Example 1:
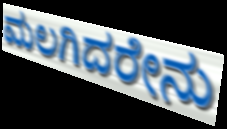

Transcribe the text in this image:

ಮಲಗಿದರೇನು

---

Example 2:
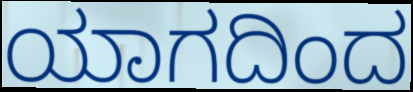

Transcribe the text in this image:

ಯಾಗದಿಂದ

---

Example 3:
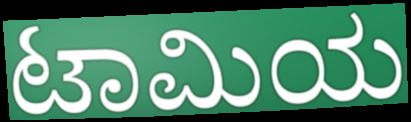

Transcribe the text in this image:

ಟಾಮಿಯ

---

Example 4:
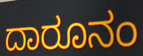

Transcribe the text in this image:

ದಾರೂನಂ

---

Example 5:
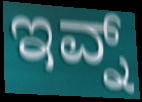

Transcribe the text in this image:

ಇವ್ನ್